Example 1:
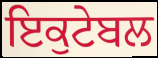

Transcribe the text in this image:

ਇਕੁਟੇਬਲ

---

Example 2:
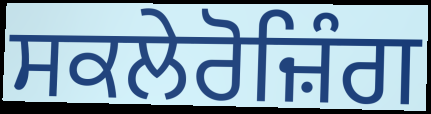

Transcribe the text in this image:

ਸਕਲੇਰੋਜ਼ਿੰਗ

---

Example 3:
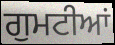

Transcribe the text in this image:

ਗੁਮਟੀਆਂ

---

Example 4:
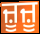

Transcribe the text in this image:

ਜ਼ੂਜ਼ੂ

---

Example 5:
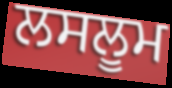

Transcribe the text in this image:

ਲਸਲੂਮ